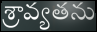
శ్రావ్యతను